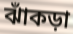
ঝাঁকড়া